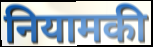
नियामकी